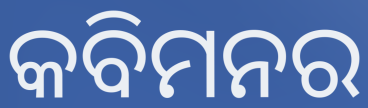
କବିମନର